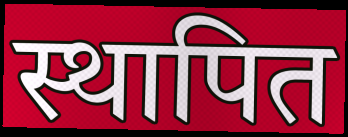
स्थापित